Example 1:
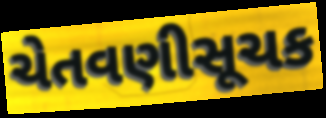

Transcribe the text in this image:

ચેતવણીસૂચક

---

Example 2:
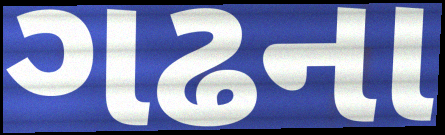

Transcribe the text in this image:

ગઢના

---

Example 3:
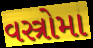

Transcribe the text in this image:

વસ્ત્રોમા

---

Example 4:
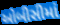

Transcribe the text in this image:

ઓબીસીમાં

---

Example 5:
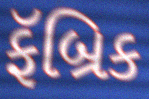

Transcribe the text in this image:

ફૅબ્રિક